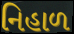
નિહાળ